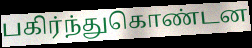
பகிர்ந்துகொண்டன